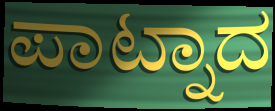
ಪಾಟ್ನಾದ